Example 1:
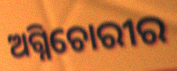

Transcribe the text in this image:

ଅଗ୍ନିଚୋରୀର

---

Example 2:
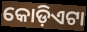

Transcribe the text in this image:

କୋଡ଼ିଏଟା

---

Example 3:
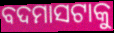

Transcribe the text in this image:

ବଦମାସଟାକୁ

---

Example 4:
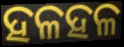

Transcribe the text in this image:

ହଳହଳ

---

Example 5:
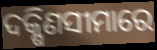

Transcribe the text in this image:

ଦକ୍ଷିଣସୀମାରେ